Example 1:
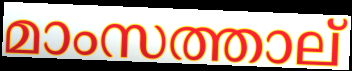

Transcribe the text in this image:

മാംസത്താല്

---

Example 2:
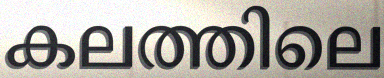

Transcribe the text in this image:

കലത്തിലെ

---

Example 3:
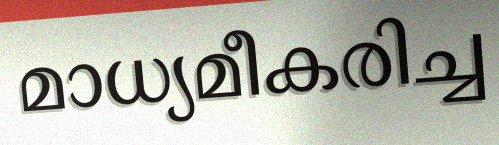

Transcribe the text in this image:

മാധ്യമീകരിച്ച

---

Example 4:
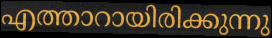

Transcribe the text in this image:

എത്താറായിരിക്കുന്നു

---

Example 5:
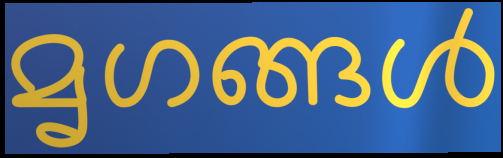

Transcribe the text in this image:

മൃഗങ്ങൾ